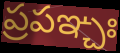
ప్రపఞ్చః